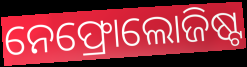
ନେଫ୍ରୋଲୋଜିଷ୍ଟ